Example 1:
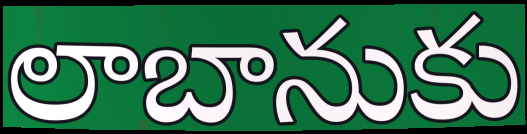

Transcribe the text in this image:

లాబానుకు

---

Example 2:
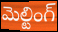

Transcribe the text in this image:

మెల్టింగ్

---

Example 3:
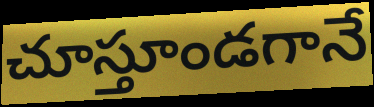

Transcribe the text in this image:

చూస్తూండగానే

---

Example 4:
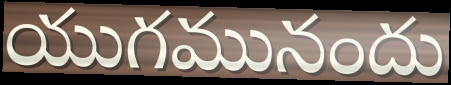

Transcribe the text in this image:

యుగమునందు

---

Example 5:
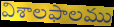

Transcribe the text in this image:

విశాలఫాలము